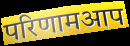
परिणामआप